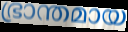
ഭ്രാന്തമായ